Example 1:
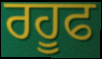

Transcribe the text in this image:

ਰਹੂਫ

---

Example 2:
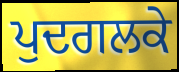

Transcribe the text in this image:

ਪੁਦਗਲਕੇ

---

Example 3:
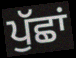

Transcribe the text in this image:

ਪੁੱਛਾਂ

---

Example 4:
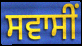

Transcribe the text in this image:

ਸਵਾਸੀਂ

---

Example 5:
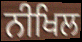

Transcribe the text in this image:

ਨੀਖਿਲ